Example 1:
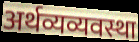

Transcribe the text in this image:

अर्थव्यव्यवस्था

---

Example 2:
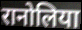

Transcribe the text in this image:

रानोलिया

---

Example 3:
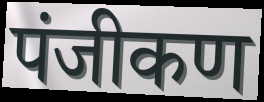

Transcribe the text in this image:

पंजीकण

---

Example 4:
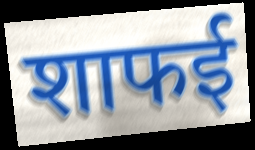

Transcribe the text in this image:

शाफई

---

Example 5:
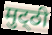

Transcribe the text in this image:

मुट्‌ठी